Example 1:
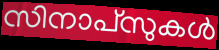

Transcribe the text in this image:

സിനാപ്സുകൾ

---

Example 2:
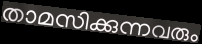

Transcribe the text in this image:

താമസിക്കുന്നവരും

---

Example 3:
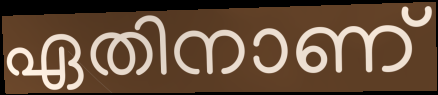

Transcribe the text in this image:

ഏതിനാണ്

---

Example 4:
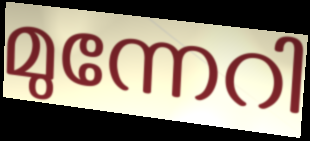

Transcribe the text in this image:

മുന്നേറി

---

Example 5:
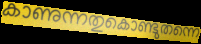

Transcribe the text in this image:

കാണുന്നതുകൊണ്ടുതന്നെ